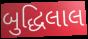
બુદ્ધિલાલ